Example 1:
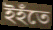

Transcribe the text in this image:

ইহঁতে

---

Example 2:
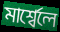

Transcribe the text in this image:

মাৰ্শ্বেলে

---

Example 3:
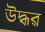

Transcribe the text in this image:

উদ্ধৱ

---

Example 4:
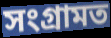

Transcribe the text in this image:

সংগ্ৰামত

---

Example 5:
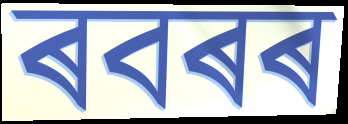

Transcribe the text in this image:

ৰবৰৰ